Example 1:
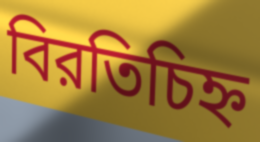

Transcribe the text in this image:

বিরতিচিহ্ন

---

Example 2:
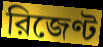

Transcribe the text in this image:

রিজেণ্ট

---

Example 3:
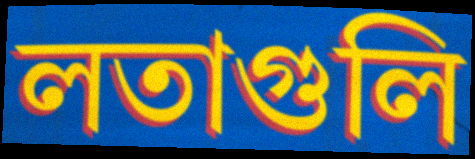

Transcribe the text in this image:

লতাগুলি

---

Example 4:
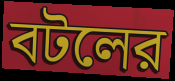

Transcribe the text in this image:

বটলের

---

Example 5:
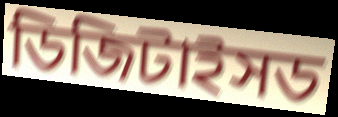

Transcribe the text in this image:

ডিজিটাইসড